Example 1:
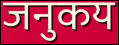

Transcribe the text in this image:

जनुकय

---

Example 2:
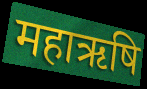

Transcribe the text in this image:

महाऋषि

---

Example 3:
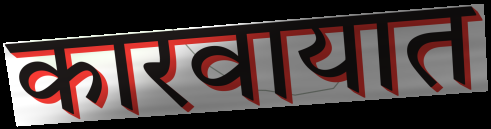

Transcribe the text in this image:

कारवायात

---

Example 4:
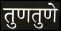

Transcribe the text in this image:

तुणतुणे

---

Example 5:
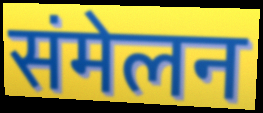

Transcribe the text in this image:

संमेलन